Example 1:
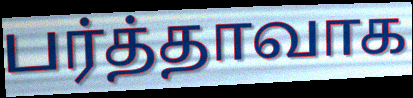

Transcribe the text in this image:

பர்த்தாவாக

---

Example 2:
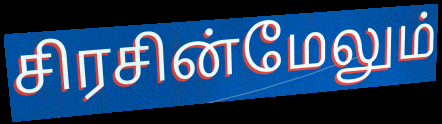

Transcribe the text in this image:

சிரசின்மேலும்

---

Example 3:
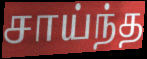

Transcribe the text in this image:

சாய்ந்த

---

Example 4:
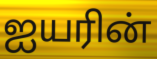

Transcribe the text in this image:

ஐயரின்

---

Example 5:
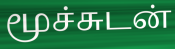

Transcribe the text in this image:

மூச்சுடன்